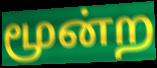
மூன்ற